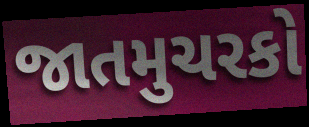
જાતમુચરકો